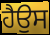
ਹੈਉਸ